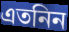
এতনিন